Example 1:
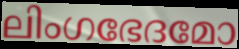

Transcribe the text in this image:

ലിംഗഭേദമോ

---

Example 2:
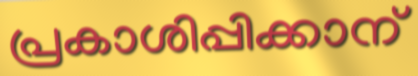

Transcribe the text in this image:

പ്രകാശിപ്പിക്കാന്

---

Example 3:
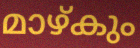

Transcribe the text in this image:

മാഴ്കും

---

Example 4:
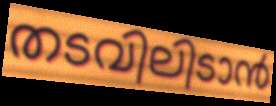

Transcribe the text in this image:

തടവിലിടാൻ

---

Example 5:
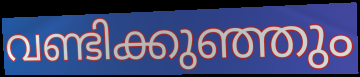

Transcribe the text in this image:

വണ്ടിക്കുഞ്ഞും